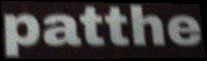
patthe